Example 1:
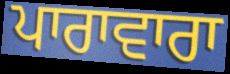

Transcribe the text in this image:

ਪਾਰਾਵਾਰਾ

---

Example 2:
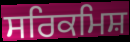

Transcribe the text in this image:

ਸਰਿਕਮਿਸ਼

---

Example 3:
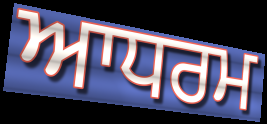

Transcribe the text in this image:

ਆਧਰਮ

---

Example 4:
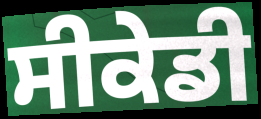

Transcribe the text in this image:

ਸੀਕੇਡੀ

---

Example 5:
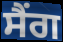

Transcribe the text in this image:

ਸੈਂਗ